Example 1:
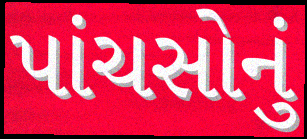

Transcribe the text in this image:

પાંચસોનું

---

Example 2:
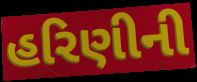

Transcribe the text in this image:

હરિણીની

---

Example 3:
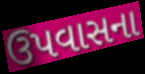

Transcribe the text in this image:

ઉપવાસના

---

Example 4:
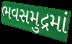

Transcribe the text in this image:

ભવસમુદ્રમાં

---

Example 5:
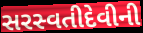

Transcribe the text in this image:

સરસ્વતીદેવીની